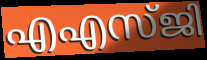
എഎസ്ജി